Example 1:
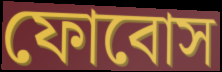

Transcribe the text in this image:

ফোবোস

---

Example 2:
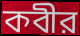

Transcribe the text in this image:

কবীর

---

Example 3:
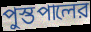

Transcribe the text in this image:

পুস্তপালের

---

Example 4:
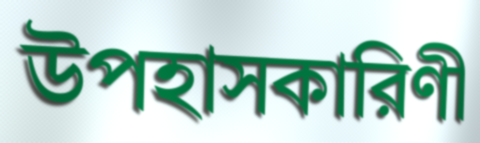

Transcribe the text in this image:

উপহাসকারিণী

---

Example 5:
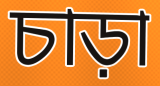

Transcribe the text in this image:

চাড়া